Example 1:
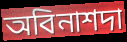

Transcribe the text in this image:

অবিনাশদা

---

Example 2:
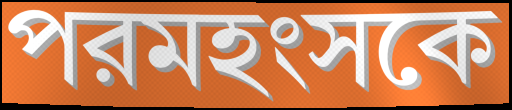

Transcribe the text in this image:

পরমহংসকে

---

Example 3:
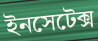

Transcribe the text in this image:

ইনসেটেক্স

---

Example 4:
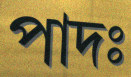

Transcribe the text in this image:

পাদঃ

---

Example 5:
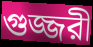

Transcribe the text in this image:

গুজ্জরী